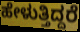
ಹೇಳುತ್ತಿದ್ದರೆ